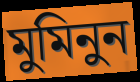
মুমিনুন